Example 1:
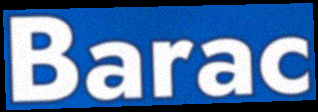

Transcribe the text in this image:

Barac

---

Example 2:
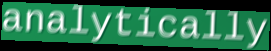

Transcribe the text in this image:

analytically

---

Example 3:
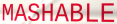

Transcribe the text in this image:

MASHABLE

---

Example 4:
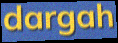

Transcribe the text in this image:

dargah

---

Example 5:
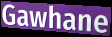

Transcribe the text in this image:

Gawhane